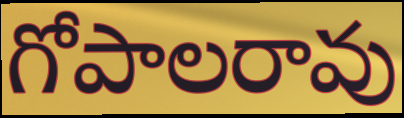
గోపాలరావు